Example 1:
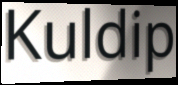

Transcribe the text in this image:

Kuldip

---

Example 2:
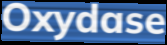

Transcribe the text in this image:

Oxydase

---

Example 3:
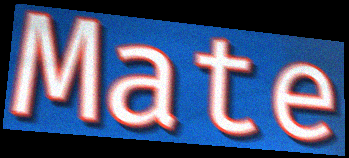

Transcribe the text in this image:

Mate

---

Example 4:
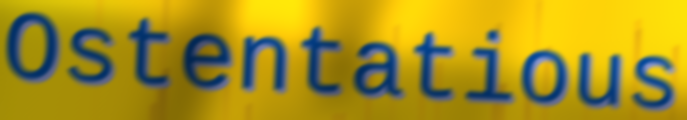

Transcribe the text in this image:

Ostentatious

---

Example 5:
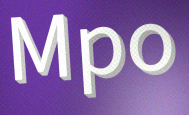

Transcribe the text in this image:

Mpo